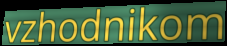
vzhodnikom